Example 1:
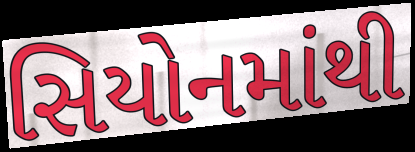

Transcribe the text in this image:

સિયોનમાંથી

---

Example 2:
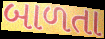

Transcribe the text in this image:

બાળતા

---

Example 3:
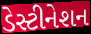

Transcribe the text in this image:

ડેસ્ટીનેશન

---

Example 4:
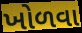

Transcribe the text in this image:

ખોળવા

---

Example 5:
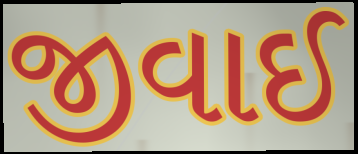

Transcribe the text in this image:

જીવાઈ